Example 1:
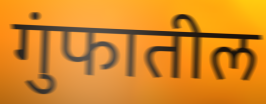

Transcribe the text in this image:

गुंफातील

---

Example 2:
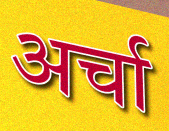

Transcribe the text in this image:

अर्चा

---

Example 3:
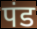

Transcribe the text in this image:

पंड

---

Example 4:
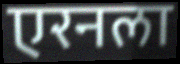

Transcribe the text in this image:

एरनला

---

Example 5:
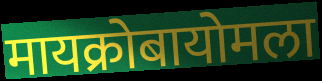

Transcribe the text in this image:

मायक्रोबायोमला